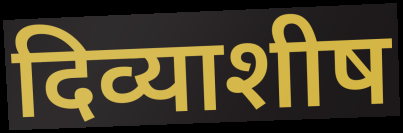
दिव्याशीष